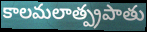
కాలమలాత్ప్రపాతు